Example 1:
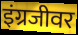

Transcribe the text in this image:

इंग्रजीवर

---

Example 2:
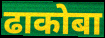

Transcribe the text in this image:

ढाकोबा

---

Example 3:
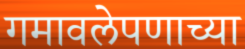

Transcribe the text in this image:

गमावलेपणाच्या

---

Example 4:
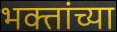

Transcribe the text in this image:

भक्तांच्या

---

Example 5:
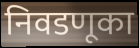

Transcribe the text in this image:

निवडणूका